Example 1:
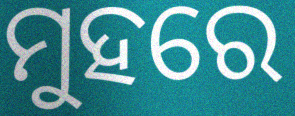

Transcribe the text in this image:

ମୁହରେ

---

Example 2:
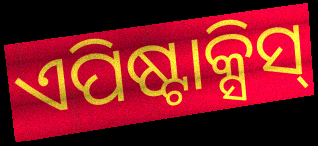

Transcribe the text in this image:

ଏପିଷ୍ଟାକ୍ସିସ୍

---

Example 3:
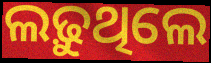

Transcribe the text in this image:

ଲଢ଼ୁଥିଲେ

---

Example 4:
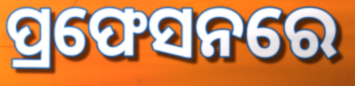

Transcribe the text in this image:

ପ୍ରଫେସନରେ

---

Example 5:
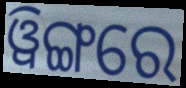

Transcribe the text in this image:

ୱିଙ୍ଗରେ